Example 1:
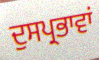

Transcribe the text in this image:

ਦੁਸਪ੍ਰਭਾਵਾਂ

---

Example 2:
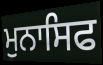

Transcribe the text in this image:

ਮੁਨਾਸਿਫ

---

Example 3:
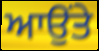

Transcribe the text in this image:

ਆਉਂਤੇ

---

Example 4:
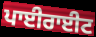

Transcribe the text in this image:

ਪਾਈਰਾਈਟ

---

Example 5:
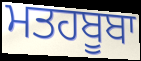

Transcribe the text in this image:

ਮਤਹਬੂਬਾ